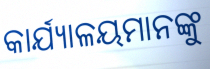
କାର୍ଯ୍ୟାଳୟମାନଙ୍କୁ